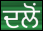
ਦਲੋਂ